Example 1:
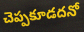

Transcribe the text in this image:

చెప్పకూడదనో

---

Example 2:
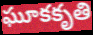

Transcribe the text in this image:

ఘూకకృతి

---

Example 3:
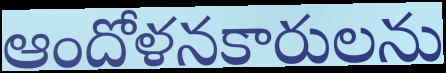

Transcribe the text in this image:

ఆందోళనకారులను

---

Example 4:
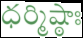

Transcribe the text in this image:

ధర్మిష్ఠాః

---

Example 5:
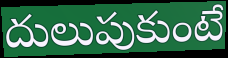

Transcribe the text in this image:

దులుపుకుంటే